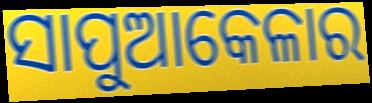
ସାପୁଆକେଳାର